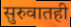
सुरुवातही